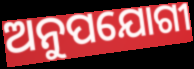
ଅନୁପଯୋଗୀ